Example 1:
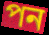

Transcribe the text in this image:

পন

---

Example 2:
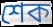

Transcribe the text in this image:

শেক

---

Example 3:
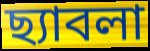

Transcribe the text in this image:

ছ্যাবলা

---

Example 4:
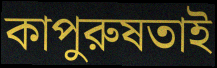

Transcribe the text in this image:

কাপুরুষতাই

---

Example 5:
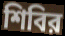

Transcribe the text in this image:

শিবির